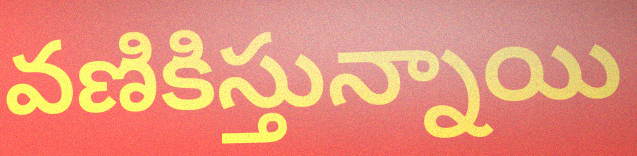
వణికిస్తున్నాయి